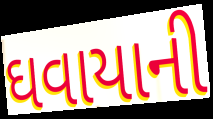
ઘવાયાની